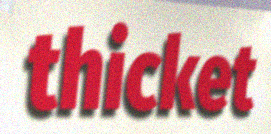
thicket